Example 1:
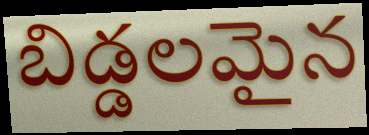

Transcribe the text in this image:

బిడ్డలమైన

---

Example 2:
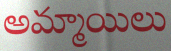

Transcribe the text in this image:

అమ్మాయిలు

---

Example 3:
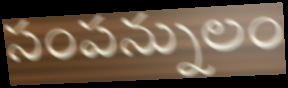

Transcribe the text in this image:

సంపన్నులం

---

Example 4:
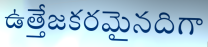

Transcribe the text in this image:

ఉత్తేజకరమైనదిగా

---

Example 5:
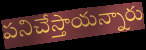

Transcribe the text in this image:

పనిచేస్తాయన్నారు